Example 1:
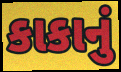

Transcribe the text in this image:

કાકાનું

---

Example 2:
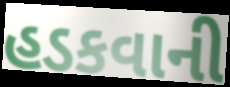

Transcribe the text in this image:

હડકવાની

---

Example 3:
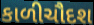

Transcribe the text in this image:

કાળીચૌદશ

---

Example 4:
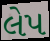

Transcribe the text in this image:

લેપ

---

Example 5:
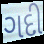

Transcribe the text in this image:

ગદી